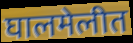
घालमेलीत